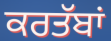
ਕਰਤੱਬਾਂ